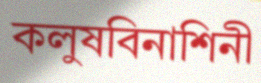
কলুষবিনাশিনী